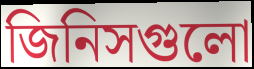
জিনিসগুলো